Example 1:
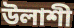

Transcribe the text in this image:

উলাশী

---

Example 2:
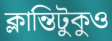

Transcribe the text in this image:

ক্লান্তিটুকুও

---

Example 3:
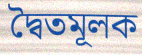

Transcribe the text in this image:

দ্বৈতমূলক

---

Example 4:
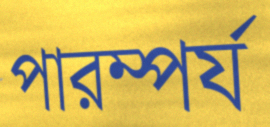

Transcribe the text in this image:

পারম্পর্য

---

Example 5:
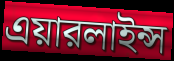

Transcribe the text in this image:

এয়ারলাইন্স